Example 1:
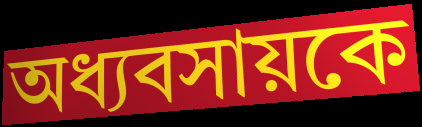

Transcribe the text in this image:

অধ্যবসায়কে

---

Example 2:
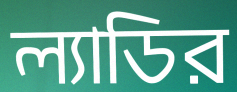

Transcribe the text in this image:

ল্যাডির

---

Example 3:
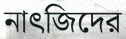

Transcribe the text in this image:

নাৎজিদের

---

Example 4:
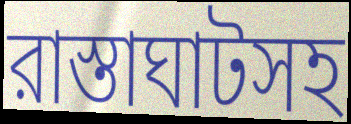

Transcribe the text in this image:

রাস্তাঘাটসহ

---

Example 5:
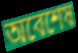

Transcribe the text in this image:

অবেশেষ